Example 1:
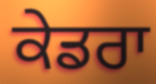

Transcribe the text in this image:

ਕੇਡਰਾ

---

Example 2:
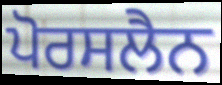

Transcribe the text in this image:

ਪੋਰਸਲੈਨ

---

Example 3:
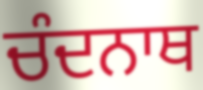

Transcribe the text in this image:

ਚੰਦਨਾਥ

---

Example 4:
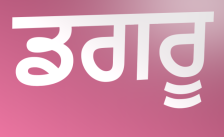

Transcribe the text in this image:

ਡਗਰੂ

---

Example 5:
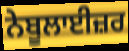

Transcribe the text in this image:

ਨੇਬੂਲਾਈਜ਼ਰ